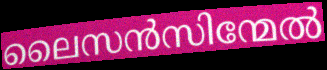
ലൈസൻസിന്മേൽ